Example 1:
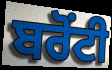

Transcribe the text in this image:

ਬਰੋਂਟੀ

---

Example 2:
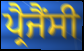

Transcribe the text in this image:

ਪ੍ਰੈਜੈਂਸੀ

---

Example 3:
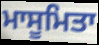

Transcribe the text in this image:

ਮਾਸੂਮਿਤਾ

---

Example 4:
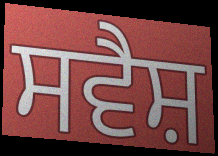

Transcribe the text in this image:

ਸਵੈਸ਼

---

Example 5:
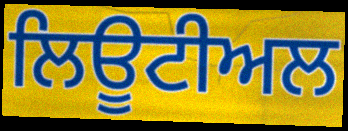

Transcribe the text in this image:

ਲਿਊਟੀਅਲ